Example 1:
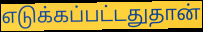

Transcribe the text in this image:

எடுக்கப்பட்டதுதான்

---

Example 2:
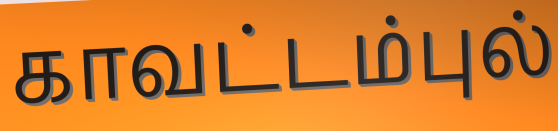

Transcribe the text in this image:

காவட்டம்புல்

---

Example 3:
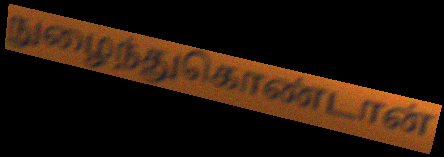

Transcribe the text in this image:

நுழைந்துகொண்டான்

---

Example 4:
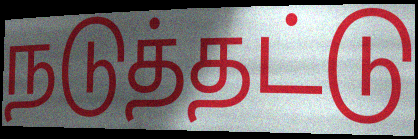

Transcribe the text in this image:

நடுத்தட்டு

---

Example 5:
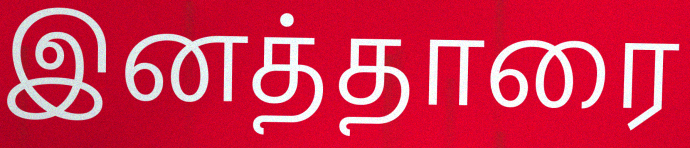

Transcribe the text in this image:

இனத்தாரை